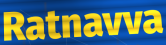
Ratnavva